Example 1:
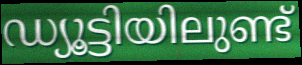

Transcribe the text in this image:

ഡ്യൂട്ടിയിലുണ്ട്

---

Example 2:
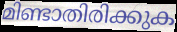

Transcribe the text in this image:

മിണ്ടാതിരിക്കുക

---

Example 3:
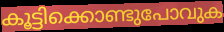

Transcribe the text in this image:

കൂട്ടിക്കൊണ്ടുപോവുക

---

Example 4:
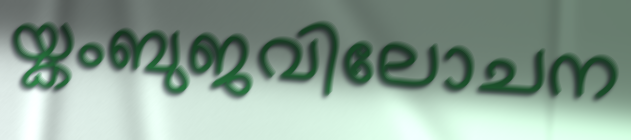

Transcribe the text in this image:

യ്കംബുജവിലോചന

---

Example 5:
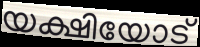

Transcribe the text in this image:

യക്ഷിയോട്